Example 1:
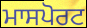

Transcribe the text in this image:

ਮਾਸਪੋਰਟ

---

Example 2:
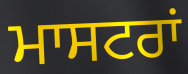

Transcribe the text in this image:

ਮਾਸਟਰਾਂ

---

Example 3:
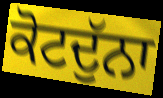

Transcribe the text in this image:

ਕੋਟਦੁੱਨਾ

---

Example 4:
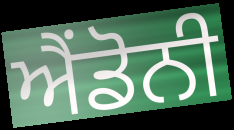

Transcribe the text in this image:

ਐਂਡੋਨੀ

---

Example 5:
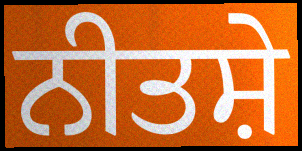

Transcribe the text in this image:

ਨੀਤਸ਼ੇ